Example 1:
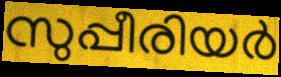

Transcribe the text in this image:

സുപ്പീരിയർ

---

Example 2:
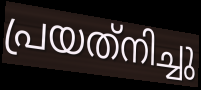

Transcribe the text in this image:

പ്രയത്‌നിച്ചു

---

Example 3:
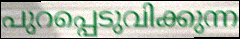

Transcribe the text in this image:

പുറപ്പെടുവിക്കുന്ന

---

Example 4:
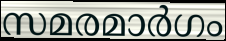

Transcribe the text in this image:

സമരമാർഗം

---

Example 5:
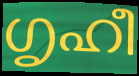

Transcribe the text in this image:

ഗൃഹീ